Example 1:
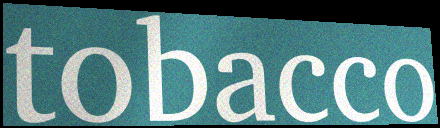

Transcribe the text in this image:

tobacco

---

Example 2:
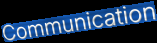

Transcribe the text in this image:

Communication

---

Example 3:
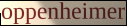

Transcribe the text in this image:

oppenheimer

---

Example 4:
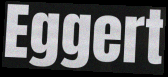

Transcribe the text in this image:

Eggert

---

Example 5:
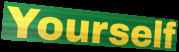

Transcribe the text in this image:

Yourself